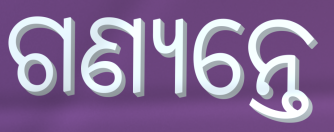
ଗଣ୍ୟନ୍ତେ